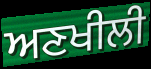
ਅਣਖੀਲੀ